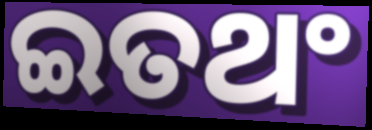
ଇତଥଂ